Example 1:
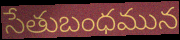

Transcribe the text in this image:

సేతుబంధమున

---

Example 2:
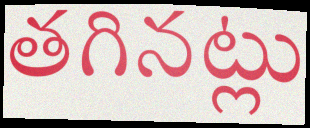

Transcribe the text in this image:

తగినట్లు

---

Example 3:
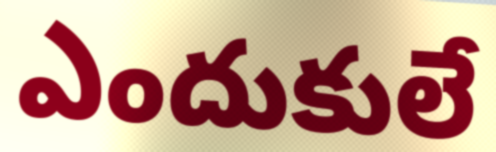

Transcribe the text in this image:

ఎందుకులే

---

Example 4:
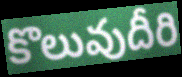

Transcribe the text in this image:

కొలువుదీరి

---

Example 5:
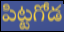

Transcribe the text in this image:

పిట్టగోడ